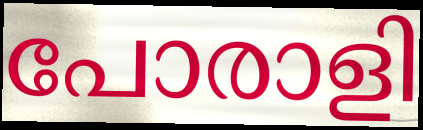
പോരാളി